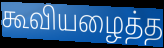
கூவியழைத்த